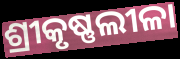
ଶ୍ରୀକୃଷ୍ଣଲୀଳା